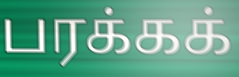
பரக்கக்